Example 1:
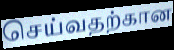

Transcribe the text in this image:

செய்வதற்கான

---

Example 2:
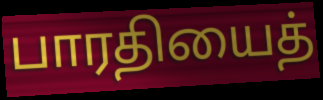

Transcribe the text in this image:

பாரதியைத்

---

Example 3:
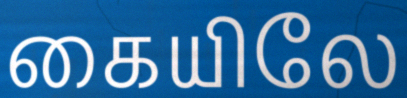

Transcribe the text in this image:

கையிலே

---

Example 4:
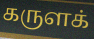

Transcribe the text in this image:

கருளக்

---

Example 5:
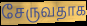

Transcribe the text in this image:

சேருவதாக